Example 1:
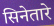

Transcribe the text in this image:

सिनेतारे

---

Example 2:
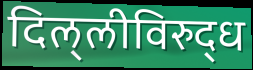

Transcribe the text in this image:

दिल्लीविरुद्ध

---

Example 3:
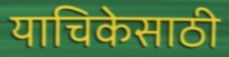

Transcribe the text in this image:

याचिकेसाठी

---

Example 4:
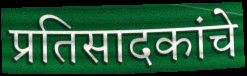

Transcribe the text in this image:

प्रतिसादकांचे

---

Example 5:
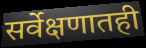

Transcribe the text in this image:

सर्वेक्षणातही